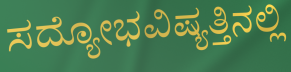
ಸದ್ಯೋಭವಿಷ್ಯತ್ತಿನಲ್ಲಿ